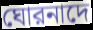
ঘোরনাদে